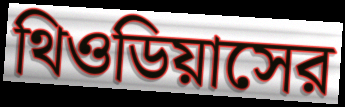
থিওডিয়াসের